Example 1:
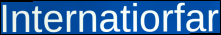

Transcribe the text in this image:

Internatiorfar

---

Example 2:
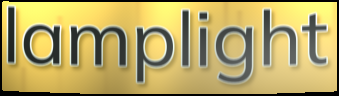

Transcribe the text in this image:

lamplight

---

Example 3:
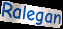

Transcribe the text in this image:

Ralegan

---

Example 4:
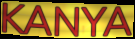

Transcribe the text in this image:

KANYA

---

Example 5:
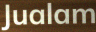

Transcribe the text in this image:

Jualam